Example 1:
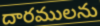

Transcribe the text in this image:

దారములను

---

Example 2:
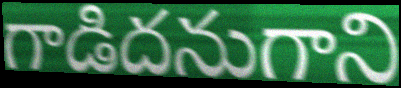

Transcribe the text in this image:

గాడిదనుగాని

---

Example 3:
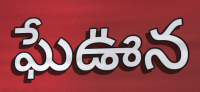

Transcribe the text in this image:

ఘేఊన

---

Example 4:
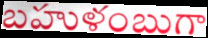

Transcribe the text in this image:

బహుళంబుగా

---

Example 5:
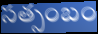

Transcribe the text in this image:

సత్సంబం